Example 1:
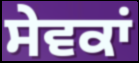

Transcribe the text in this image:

ਸੇਵਕਾਂ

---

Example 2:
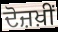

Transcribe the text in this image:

ਦੋਜ਼ਖ਼ੀਂ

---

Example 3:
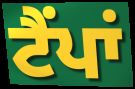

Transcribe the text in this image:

ਟੈਂਪਾਂ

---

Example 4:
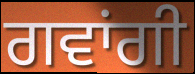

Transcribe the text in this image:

ਗਵਾਂਗੀ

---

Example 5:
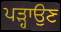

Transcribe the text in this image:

ਪੜ੍ਹਾਉਣ